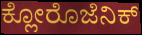
ಕ್ಲೋರೊಜೆನಿಕ್